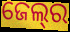
ଜେଲ୍‍ର